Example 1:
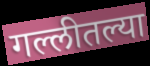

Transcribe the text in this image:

गल्लीतल्या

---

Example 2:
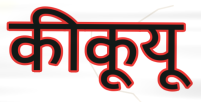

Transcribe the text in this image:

कीकूयू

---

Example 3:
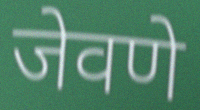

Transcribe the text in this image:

जेवणे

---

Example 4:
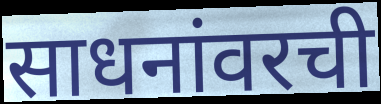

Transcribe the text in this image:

साधनांवरची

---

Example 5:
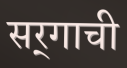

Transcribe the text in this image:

सर्गाची